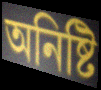
অনিষ্টি